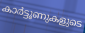
കാർട്ടൂണുകളുടെ